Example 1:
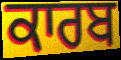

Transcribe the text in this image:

ਕਾਰਬ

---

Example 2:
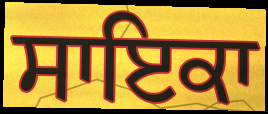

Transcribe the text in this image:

ਸਾਇਕਾ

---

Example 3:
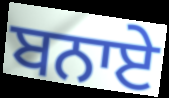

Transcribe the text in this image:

ਬਨਾਏ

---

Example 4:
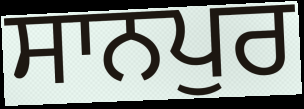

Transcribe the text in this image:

ਸਾਨਪੁਰ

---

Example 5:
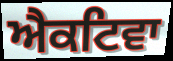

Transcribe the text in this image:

ਐਕਟਿਵਾ